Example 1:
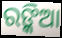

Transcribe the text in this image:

ରଙ୍କିଆ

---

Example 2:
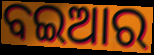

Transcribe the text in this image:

ବଇଆର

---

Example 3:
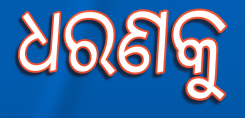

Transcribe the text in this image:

ଧରଣକୁ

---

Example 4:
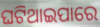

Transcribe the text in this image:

ଘଟିଥାଇପାରେ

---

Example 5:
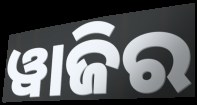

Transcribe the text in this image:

ୱାଜିର